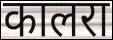
कालरा